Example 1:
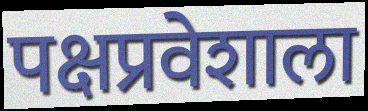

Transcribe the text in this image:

पक्षप्रवेशाला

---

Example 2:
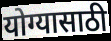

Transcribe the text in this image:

योग्यासाठी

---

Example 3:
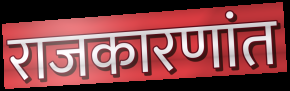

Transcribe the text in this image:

राजकारणांत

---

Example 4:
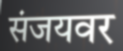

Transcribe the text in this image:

संजयवर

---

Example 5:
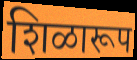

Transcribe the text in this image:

शिळारूप